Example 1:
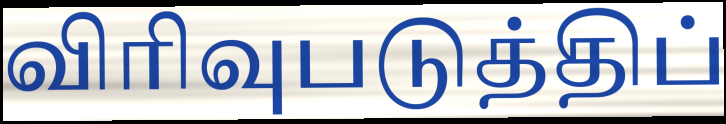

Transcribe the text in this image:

விரிவுபடுத்திப்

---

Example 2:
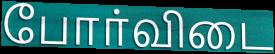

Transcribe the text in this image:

போர்விடை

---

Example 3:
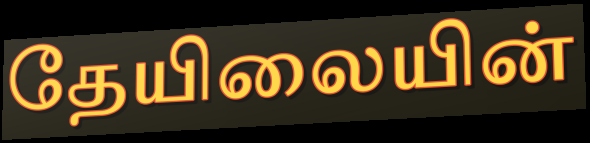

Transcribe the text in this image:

தேயிலையின்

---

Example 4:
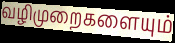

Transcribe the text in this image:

வழிமுறைகளையும்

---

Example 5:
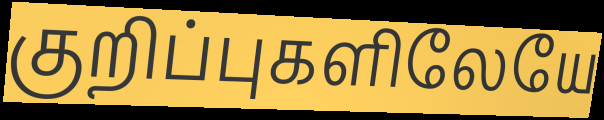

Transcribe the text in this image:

குறிப்புகளிலேயே